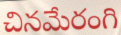
చినమేరంగి